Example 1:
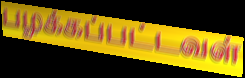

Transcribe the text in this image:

பழக்கப்பட்டவள்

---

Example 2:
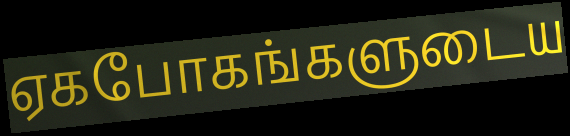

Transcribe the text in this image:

ஏகபோகங்களுடைய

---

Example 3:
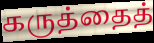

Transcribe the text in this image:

கருத்தைத்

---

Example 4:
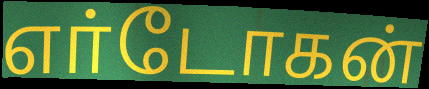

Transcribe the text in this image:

எர்டோகன்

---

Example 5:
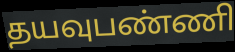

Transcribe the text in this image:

தயவுபண்ணி